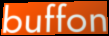
buffon